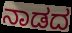
ನಾಡದ